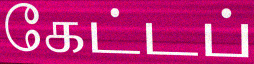
கேட்டப்